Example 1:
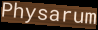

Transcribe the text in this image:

Physarum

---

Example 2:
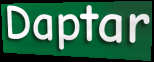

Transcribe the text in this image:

Daptar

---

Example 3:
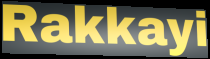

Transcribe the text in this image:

Rakkayi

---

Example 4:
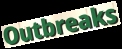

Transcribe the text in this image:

Outbreaks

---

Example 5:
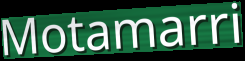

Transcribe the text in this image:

Motamarri